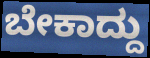
ಬೇಕಾದ್ದು